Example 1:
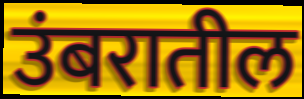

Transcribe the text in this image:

उंबरातील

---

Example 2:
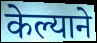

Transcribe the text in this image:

केल्‍याने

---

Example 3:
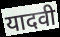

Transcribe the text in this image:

यादवी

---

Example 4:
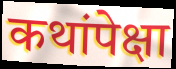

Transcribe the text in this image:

कथांपेक्षा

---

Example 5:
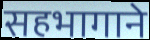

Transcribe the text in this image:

सहभागाने